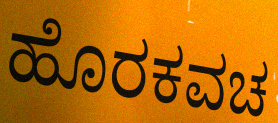
ಹೊರಕವಚ